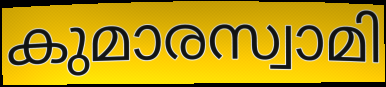
കുമാരസ്വാമി